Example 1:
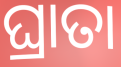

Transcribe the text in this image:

ଘ୍ରାତା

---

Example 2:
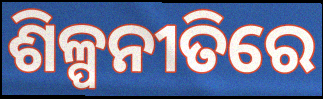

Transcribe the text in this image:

ଶିଳ୍ପନୀତିରେ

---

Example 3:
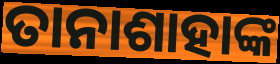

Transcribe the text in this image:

ତାନାଶାହାଙ୍କ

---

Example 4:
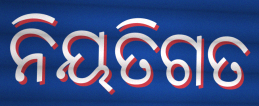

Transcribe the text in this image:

ନିୟତିଗତ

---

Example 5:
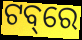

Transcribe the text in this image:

ଟବ୍‌ରେ